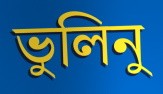
ভুলিনু